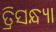
ତ୍ରିସନ୍ଧ୍ୟା